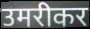
उमरीकर